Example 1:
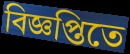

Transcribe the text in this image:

বিজ্ঞপ্তিতে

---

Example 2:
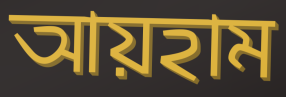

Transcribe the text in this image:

আয়হাম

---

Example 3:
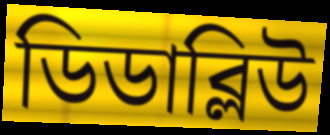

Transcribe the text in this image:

ডিডাব্লিউ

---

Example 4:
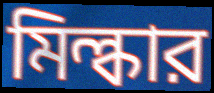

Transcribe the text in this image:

মিল্কার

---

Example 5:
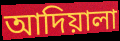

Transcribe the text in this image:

আদিয়ালা